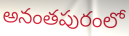
అనంతపురంలో